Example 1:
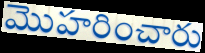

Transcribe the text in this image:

మొహరించారు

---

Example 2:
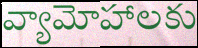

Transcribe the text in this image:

వ్యామోహాలకు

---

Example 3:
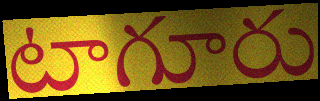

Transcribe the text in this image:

టాగూరు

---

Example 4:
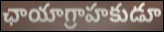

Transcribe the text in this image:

ఛాయాగ్రాహకుడూ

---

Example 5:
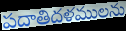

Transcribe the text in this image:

పదాతిదళములను